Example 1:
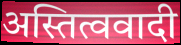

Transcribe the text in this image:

अस्तित्ववादी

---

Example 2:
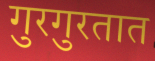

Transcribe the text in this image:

गुरगुरतात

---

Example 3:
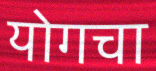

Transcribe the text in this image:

योगचा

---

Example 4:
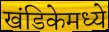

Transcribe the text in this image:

खंडिकेमध्ये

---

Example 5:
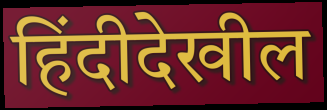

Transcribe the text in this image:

हिंदीदेखील